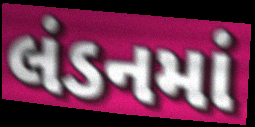
લંડનમાં